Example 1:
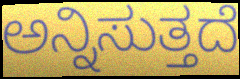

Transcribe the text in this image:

ಅನ್ನಿಸುತ್ತದೆ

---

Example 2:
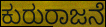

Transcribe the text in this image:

ಕುರುರಾಜನೆ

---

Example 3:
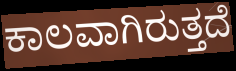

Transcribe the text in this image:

ಕಾಲವಾಗಿರುತ್ತದೆ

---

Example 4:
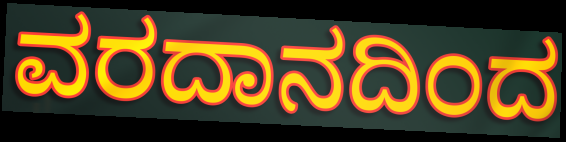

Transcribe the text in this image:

ವರದಾನದಿಂದ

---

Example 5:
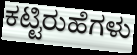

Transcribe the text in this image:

ಕಟ್ಟಿರುಹೆಗಳು